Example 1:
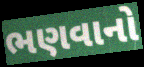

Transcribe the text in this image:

ભણવાનો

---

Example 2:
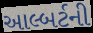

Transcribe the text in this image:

આલ્બર્ટની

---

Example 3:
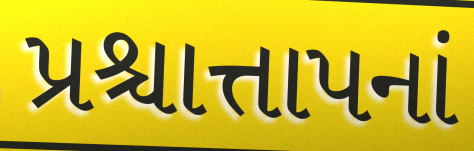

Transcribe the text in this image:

પ્રશ્ચાત્તાપનાં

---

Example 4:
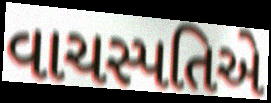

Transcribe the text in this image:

વાચસ્પતિએ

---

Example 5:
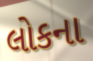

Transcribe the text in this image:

લોકના